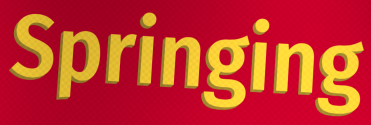
Springing